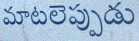
మాటలెప్పుడు